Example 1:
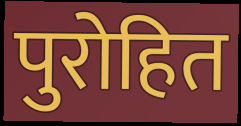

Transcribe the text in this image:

पुरोहित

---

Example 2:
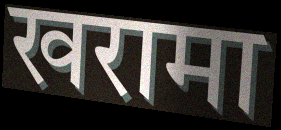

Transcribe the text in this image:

खरामा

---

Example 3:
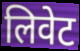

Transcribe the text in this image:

लिवेट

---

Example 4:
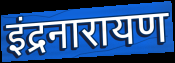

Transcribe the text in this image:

इंद्रनारायण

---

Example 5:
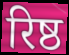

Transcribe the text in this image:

रिष्ठ